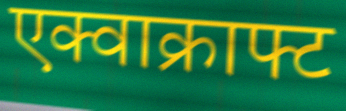
एक्वाक्राफ्ट